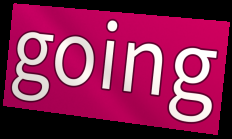
going